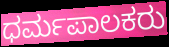
ಧರ್ಮಪಾಲಕರು